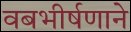
वबभीर्षणाने